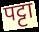
पट्टा